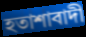
হতাশাবাদী